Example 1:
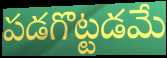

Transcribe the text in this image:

పడగొట్టడమే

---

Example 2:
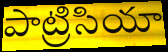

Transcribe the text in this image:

పాట్రిసియా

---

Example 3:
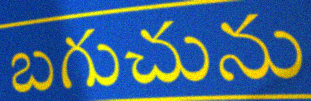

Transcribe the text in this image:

బగుచును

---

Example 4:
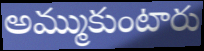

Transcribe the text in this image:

అమ్ముకుంటారు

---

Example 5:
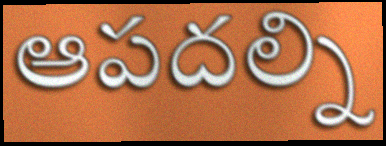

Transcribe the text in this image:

ఆపదల్ని